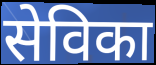
सेविका